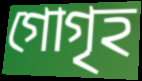
গোগৃহ